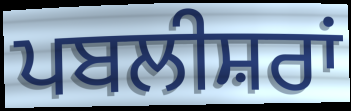
ਪਬਲੀਸ਼ਰਾਂ